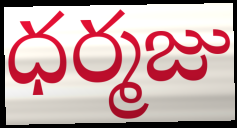
ధర్మజు